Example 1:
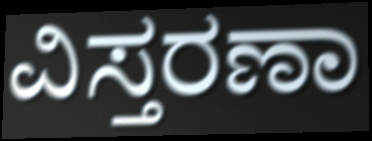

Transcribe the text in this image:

ವಿಸ್ತರಣಾ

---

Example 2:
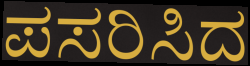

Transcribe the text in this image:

ಪಸರಿಸಿದ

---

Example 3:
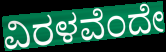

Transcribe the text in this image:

ವಿರಳವೆಂದೇ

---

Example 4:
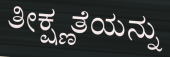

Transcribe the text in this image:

ತೀಕ್ಷ್ಣತೆಯನ್ನು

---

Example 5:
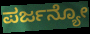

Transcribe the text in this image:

ಪರ್ಜನ್ಯೋ